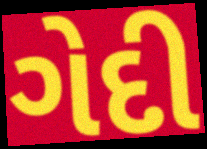
ગેદી